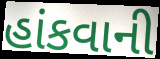
હાંકવાની